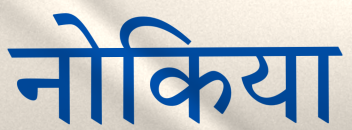
नोकिया